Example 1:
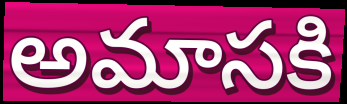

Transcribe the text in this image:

అమాసకి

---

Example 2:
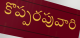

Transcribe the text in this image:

కొప్పరపువారి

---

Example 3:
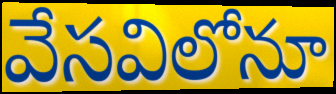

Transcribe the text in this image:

వేసవిలోనూ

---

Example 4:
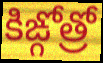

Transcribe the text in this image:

కిఙ్గోత్రో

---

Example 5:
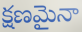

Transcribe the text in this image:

క్షణమైనా